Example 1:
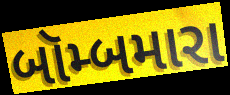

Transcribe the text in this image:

બૉમ્બમારા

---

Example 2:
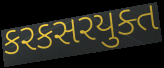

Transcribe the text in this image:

કરકસરયુક્ત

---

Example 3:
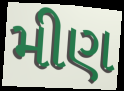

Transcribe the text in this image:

મીણ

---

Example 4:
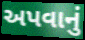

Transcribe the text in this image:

અપવાનું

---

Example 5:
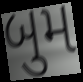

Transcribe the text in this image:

બુમ